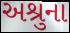
અશ્રુના